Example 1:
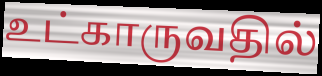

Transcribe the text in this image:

உட்காருவதில்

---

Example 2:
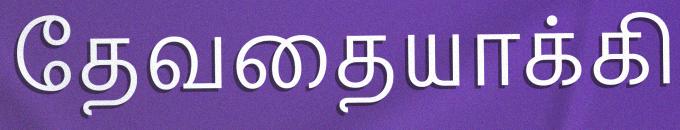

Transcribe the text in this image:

தேவதையாக்கி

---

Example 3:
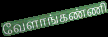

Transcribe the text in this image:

வேளாங்கண்ணி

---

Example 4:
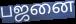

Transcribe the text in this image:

பஜனை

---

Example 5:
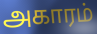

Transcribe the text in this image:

அகாரம்